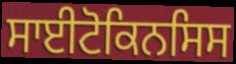
ਸਾਈਟੋਕਿਨਸਿਸ